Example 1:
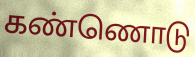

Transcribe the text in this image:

கண்ணொடு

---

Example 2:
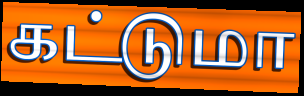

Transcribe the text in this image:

கட்டுமா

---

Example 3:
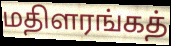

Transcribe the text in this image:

மதிளரங்கத்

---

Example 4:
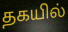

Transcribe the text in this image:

தகயில்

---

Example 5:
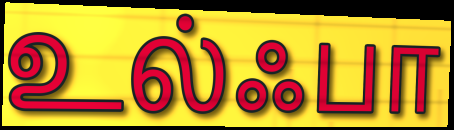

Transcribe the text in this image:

உல்ஃபா